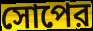
সোপের